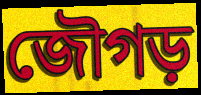
জৌগড়